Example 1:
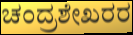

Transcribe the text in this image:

ಚಂದ್ರಶೇಖರರ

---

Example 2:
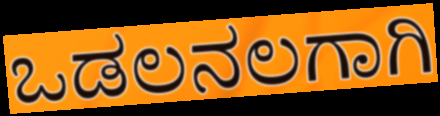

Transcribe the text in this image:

ಒಡಲನಲಗಾಗಿ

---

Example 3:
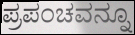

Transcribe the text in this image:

ಪ್ರಪಂಚವನ್ನೂ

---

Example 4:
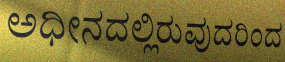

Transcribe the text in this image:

ಅಧೀನದಲ್ಲಿರುವುದರಿಂದ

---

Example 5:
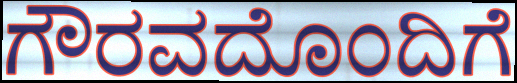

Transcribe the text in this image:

ಗೌರವದೊಂದಿಗೆ